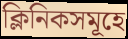
ক্লিনিকসমূহে